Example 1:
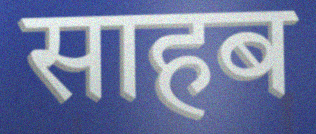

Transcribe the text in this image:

साहब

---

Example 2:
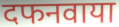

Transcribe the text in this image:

दफनवाया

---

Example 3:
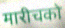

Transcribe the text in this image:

मारीचको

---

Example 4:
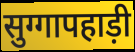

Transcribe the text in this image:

सुग्गापहाड़ी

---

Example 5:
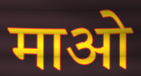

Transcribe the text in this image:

माओ